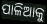
ପାଳିଆକୁ